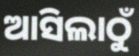
ଆସିଲାଠୁଁ